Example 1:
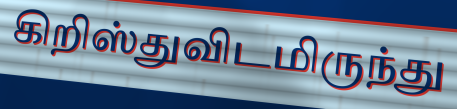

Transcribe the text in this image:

கிறிஸ்துவிடமிருந்து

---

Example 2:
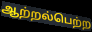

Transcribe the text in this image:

ஆற்றல்பெற்ற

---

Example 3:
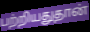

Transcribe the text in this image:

பற்றியதுதான்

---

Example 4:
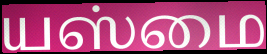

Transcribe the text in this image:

யஸ்மை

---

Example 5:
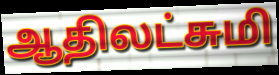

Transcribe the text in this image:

ஆதிலட்சுமி